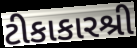
ટીકાકારશ્રી